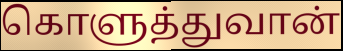
கொளுத்துவான்